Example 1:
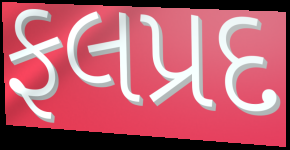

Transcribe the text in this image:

ફલપ્રદ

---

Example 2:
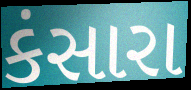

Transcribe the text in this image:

કંસારા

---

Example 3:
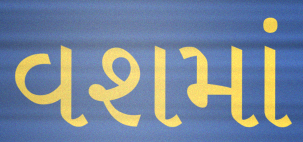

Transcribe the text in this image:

વશમાં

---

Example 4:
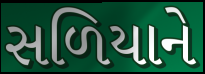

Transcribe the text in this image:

સળિયાને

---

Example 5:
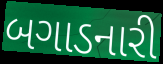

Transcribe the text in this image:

બગાડનારી